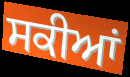
ਸਕੀਆਂ